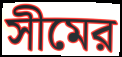
সীমের